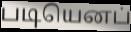
படியெனப்